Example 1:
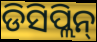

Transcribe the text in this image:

ଡିସିପ୍ଲିନ୍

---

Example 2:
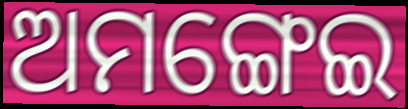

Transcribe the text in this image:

ଅମଙ୍ଗେଇ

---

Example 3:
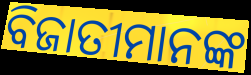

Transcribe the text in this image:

ବିଜାତୀମାନଙ୍କ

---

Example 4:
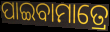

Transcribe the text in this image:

ପାଇବାମାତ୍ରେ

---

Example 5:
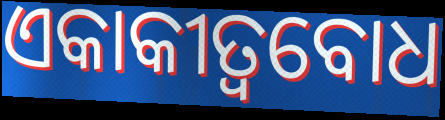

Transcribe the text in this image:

ଏକାକୀତ୍ୱବୋଧ